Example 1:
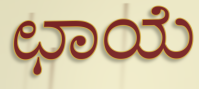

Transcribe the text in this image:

ಛಾಯೆ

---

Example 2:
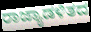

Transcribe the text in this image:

ರಾಜ್ಯಾಡಳಿತದ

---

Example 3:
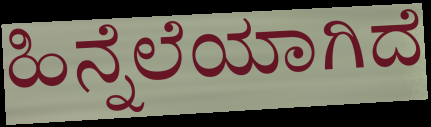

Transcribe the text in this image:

ಹಿನ್ನೆಲೆಯಾಗಿದೆ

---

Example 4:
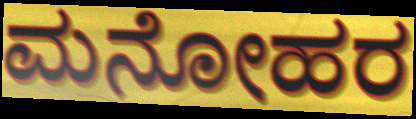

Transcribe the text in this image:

ಮನೋಹರ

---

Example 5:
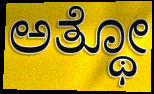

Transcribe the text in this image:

ಅತ್ಥೋ